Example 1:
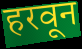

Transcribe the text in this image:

हरवून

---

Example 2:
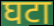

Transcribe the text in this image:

घटा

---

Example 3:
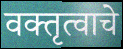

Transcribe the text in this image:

वक्तृत्वाचे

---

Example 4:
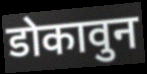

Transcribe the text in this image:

डोकावुन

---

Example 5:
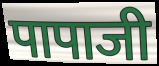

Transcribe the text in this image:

पापाजी